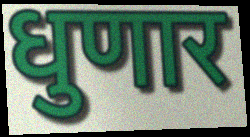
धुणार